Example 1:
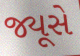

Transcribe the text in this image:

જ્યૂસે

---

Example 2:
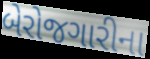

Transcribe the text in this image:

બેરોજગારીના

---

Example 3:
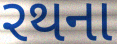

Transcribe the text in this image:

રથના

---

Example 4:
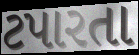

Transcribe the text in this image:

ટપારતા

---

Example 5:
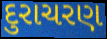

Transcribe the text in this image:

દુરાચરણ